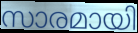
സാരമായി